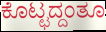
ಕೊಟ್ಟದ್ದಂತೂ